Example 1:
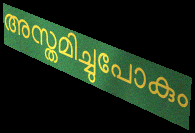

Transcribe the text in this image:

അസ്തമിച്ചുപോകും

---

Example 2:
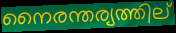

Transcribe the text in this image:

നൈരന്തര്യത്തില്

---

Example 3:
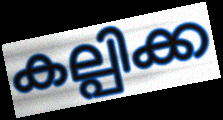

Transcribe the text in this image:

കല്പിക്ക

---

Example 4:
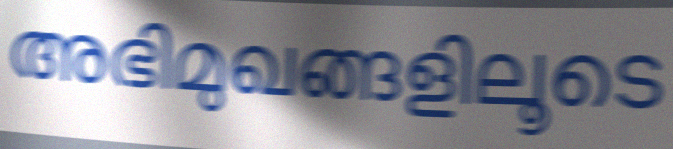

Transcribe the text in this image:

അഭിമുഖങ്ങളിലൂടെ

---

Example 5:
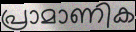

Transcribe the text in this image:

പ്രാമാണിക